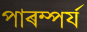
পাৰম্পৰ্য